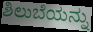
ಶಿಲುಬೆಯನ್ನು